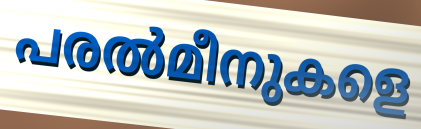
പരൽമീനുകളെ